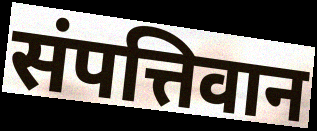
संपत्तिवान